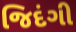
જિદંગી